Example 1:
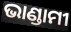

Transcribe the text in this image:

ଭାଣ୍ଡାମୀ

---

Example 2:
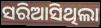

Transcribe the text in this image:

ସରିଆସିଥିଲା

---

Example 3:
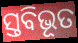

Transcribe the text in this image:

ସ୍ତବିଭୂତ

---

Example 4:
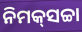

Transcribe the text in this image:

ନିମକ୍‍ସଚ୍ଚା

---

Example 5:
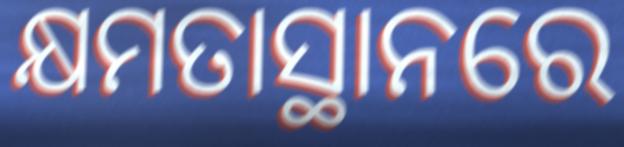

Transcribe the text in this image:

କ୍ଷମତାସ୍ଥାନରେ